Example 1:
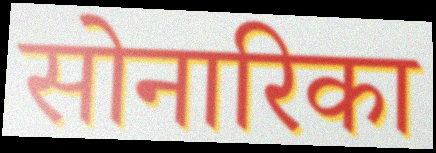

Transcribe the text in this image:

सोनारिका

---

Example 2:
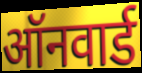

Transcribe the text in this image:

ऑनवार्ड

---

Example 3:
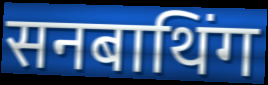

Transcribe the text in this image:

सनबाथिंग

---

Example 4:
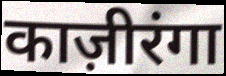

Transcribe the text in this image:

काज़ीरंगा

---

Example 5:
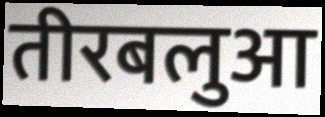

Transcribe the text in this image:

तीरबलुआ